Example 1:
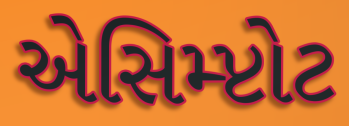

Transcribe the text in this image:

એસિમ્પ્ટોટ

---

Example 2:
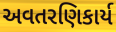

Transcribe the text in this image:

અવતરણિકાર્ય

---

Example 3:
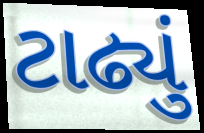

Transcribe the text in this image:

ટાઢ્યું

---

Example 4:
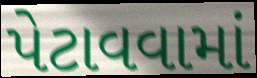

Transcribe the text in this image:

પેટાવવામાં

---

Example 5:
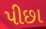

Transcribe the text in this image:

પીછા